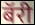
बॅरी